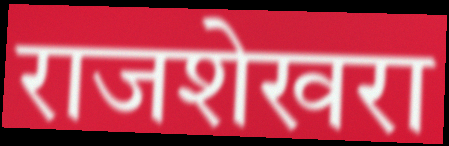
राजशेखरा